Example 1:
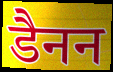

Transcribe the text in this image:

डैनन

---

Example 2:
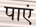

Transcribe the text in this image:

पाएं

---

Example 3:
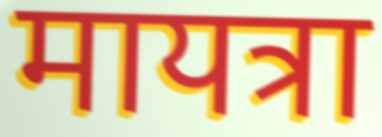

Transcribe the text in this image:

मायत्रा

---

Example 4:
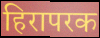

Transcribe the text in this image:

हिरापरक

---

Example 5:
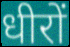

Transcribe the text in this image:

धीरों